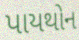
પાયથોન